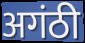
अगंठी